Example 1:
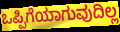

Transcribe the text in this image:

ಒಪ್ಪಿಗೆಯಾಗುವುದಿಲ್ಲ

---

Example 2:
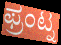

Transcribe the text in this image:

ಫ್ರಂಟ್ನ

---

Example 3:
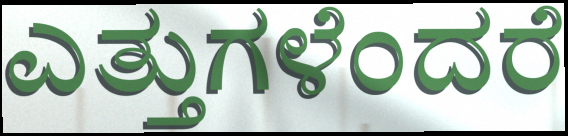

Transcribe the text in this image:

ಎತ್ತುಗಳೆಂದರೆ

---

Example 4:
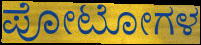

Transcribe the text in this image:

ಪೋಟೋಗಳ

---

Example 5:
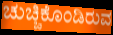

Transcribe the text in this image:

ಚುಚ್ಚಿಕೊಂಡಿರುವ